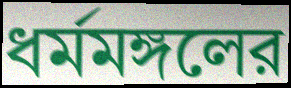
ধর্মমঙ্গলের